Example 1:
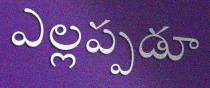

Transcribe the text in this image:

ఎల్లప్పడూ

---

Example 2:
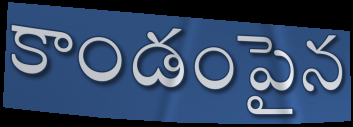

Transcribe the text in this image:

కాండంపైన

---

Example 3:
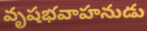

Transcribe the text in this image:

వృషభవాహనుడు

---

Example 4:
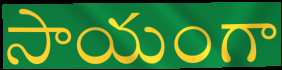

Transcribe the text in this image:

సాయంగా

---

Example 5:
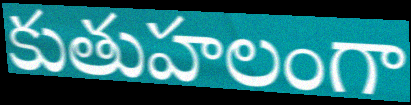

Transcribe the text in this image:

కుతుహలంగా